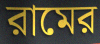
রামের